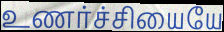
உணர்ச்சியையே